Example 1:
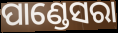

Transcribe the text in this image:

ପାଣ୍ଡେସରା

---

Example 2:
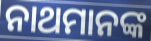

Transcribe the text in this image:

ନାଥମାନଙ୍କ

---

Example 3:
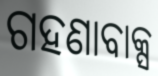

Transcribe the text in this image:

ଗହଣାବାକ୍ସ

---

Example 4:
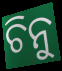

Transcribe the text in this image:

ଚିନୁ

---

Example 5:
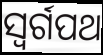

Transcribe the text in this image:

ସ୍ୱର୍ଗପଥ